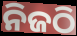
ନିଜଠି